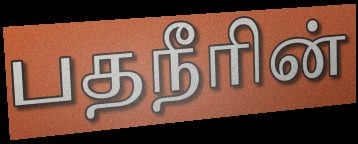
பதநீரின்